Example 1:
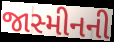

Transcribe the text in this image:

જાસ્મીનની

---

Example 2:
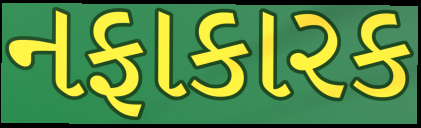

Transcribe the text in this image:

નફાકારક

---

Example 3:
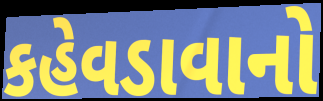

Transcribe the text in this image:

કહેવડાવાનો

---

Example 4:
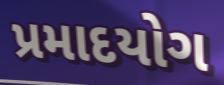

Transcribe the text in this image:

પ્રમાદયોગ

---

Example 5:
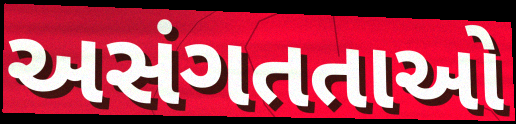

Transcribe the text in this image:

અસંગતતાઓ